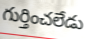
గుర్తించలేడు